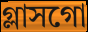
গ্লাসগো